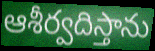
ఆశీర్వదిస్తాను